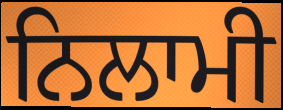
ਨਿਲਾਮੀ